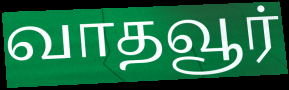
வாதவூர்